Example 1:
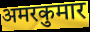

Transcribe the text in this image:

अमरकुमार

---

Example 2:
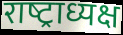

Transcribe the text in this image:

राष्ट्राध्यक्ष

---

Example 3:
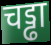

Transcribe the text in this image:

चड्ढा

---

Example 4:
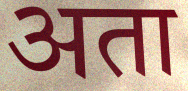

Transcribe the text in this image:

अता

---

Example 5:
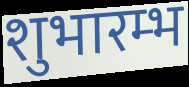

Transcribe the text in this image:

शुभारम्‍भ